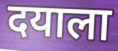
दयाला